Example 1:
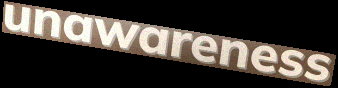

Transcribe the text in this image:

unawareness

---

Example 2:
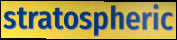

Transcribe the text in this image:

stratospheric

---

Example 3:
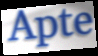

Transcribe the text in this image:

Apte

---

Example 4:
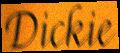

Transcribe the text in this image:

Dickie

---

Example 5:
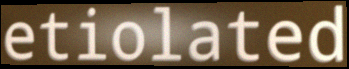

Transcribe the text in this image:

etiolated